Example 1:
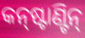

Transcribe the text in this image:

କନ୍‌ଷ୍ଟାଣ୍ଟିନ୍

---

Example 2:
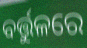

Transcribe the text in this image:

ବର୍ତ୍ତୁଳରେ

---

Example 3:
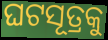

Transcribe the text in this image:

ଘଟସୂତ୍ରକୁ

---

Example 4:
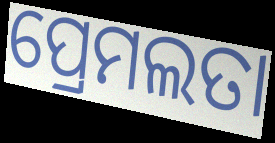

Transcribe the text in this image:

ପ୍ରେମଲତା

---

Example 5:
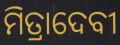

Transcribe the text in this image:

ମିତ୍ରାଦେବୀ